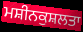
ਮਸ਼ੀਨਕੁਸ਼ਲਤਾ